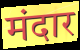
मंदार